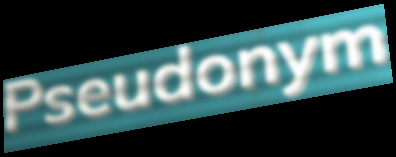
Pseudonym